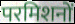
परमिशनों